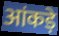
आंकड़े